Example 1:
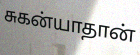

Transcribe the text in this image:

சுகன்யாதான்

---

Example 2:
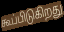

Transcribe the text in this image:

கூப்பிடுகிறது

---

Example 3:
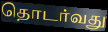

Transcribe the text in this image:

தொடர்வது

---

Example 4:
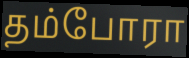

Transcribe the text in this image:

தம்போரா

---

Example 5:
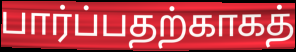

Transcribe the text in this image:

பார்ப்பதற்காகத்